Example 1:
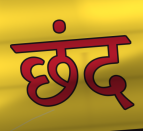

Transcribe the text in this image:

छंद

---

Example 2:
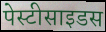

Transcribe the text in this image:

पेस्टीसाइडस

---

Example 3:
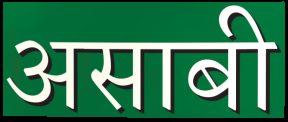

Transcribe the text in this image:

असाबी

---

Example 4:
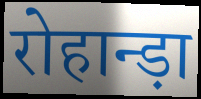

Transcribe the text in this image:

रोहान्ड़ा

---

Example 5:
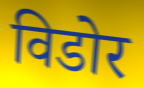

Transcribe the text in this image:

विडोर